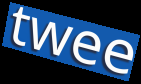
twee